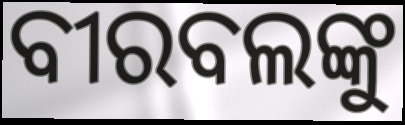
ବୀରବଲଙ୍କୁ